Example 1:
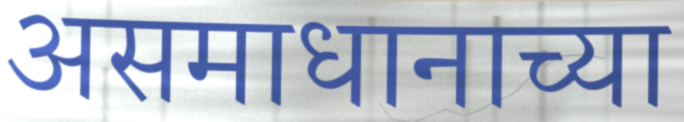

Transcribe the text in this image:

असमाधानाच्या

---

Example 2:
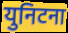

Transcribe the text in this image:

युनिटना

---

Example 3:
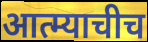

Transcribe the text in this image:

आत्म्याचीच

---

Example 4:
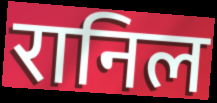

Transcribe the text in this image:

रानिल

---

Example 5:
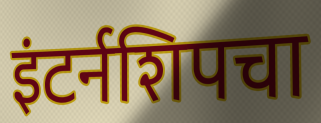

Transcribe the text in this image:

इंटर्नशिपचा